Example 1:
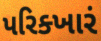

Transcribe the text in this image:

પરિક્ખારં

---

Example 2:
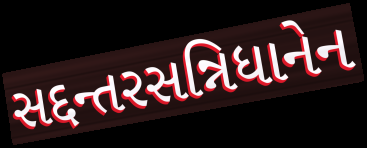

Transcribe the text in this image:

સદ્દન્તરસન્નિધાનેન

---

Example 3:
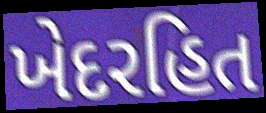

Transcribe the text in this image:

ખેદરહિત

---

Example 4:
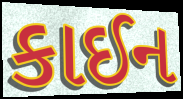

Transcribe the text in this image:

કાઈન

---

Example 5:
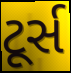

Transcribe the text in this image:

ટૂર્સ